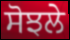
ਸੋਝਲੇ